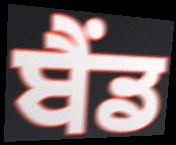
ਬੈੰਡ